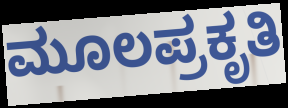
ಮೂಲಪ್ರಕೃತಿ